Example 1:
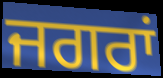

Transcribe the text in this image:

ਜਗਰਾਂ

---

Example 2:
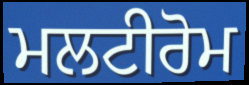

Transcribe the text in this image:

ਮਲਟੀਰੋਮ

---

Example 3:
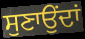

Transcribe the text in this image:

ਸੁਣਾਉਂਦਾਂ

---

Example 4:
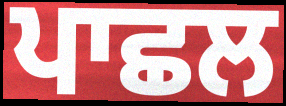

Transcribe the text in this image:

ਪਾਛਲ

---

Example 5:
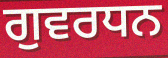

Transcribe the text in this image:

ਗੁਵਰਧਨ